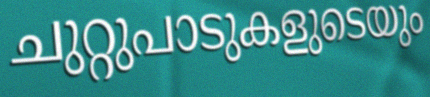
ചുറ്റുപാടുകളുടെയും